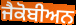
ਜੈਕੋਬੀਅਨ